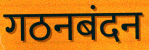
गठनबंदन